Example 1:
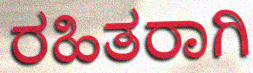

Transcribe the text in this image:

ರಹಿತರಾಗಿ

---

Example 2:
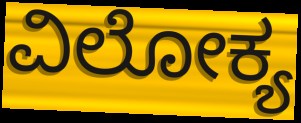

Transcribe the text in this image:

ವಿಲೋಕ್ಯ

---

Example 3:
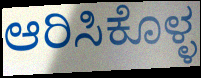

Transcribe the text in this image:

ಆರಿಸಿಕೊಳ್ಳ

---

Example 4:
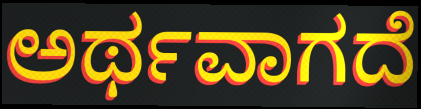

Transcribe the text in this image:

ಅರ್ಥವಾಗದೆ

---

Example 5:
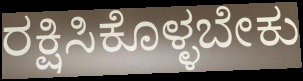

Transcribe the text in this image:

ರಕ್ಷಿಸಿಕೊಳ್ಳಬೇಕು